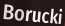
Borucki